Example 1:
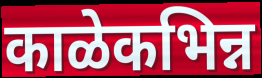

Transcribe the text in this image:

काळेकभिन्न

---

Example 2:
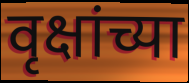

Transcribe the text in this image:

वृक्षांच्या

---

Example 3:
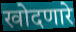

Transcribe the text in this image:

खोदणारे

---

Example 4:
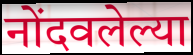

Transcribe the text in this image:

नोंदवलेल्या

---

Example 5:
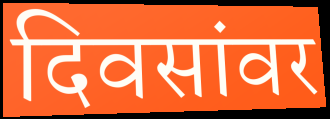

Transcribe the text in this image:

दिवसांवर